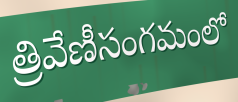
త్రివేణీసంగమంలో